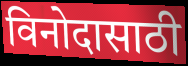
विनोदासाठी